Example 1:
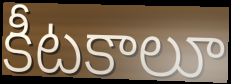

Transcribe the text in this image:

కీటకాలూ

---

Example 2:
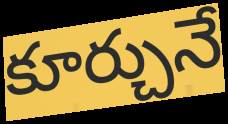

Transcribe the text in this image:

కూర్చునే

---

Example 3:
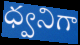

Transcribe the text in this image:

ధ్వనిగా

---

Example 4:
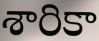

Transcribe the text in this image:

శారికా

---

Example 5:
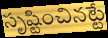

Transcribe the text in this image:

సృష్టించినట్టే